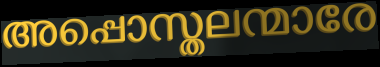
അപ്പൊസ്തലന്മാരേ